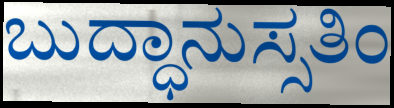
ಬುದ್ಧಾನುಸ್ಸತಿಂ